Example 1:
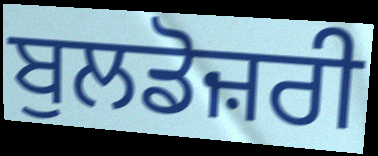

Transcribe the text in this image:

ਬੁਲਡੋਜ਼ਰੀ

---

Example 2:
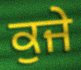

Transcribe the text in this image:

ਕੁਜੇ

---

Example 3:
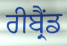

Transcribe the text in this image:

ਰੀਬ੍ਰੈਂਡ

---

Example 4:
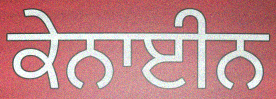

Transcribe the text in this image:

ਕੇਨਾਈਨ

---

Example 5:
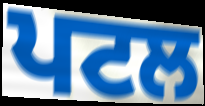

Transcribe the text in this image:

ਪਟਲ